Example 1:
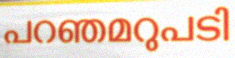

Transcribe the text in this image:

പറഞമറുപടി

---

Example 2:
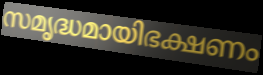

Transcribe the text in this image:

സമൃദ്ധമായിഭക്ഷണം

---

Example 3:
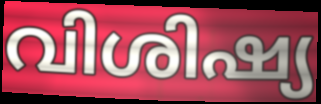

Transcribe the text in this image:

വിശിഷ്യ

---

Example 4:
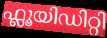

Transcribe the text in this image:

ഫ്ലൂയിഡിറ്റി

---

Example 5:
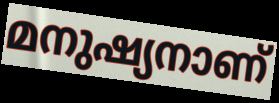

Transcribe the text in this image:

മനുഷ്യനാണ്